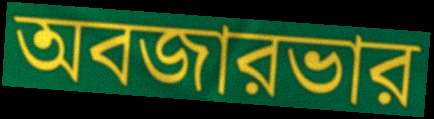
অবজারভার